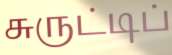
சுருட்டிப்